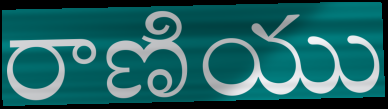
రాణియు